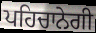
ਪਹਿਚਾਨੇਗੀ